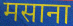
मसाना